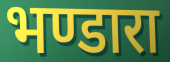
भण्डारा